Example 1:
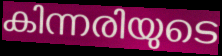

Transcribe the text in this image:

കിന്നരിയുടെ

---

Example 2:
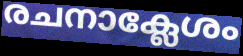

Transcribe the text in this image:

രചനാക്ലേശം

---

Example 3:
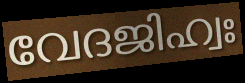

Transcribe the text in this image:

വേദജിഹ്വഃ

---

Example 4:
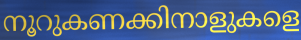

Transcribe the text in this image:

നൂറുകണക്കിനാളുകളെ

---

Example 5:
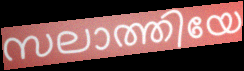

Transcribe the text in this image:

സലാത്തിയേ